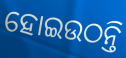
ହୋଇଉଠନ୍ତି